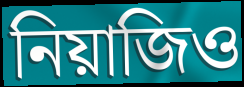
নিয়াজিও